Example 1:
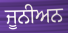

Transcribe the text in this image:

ਜੂਨੀਅਨ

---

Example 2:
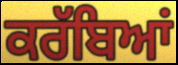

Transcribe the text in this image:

ਕਰੱਬਿਆਂ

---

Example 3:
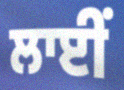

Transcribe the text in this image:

ਲਾਈਂ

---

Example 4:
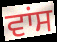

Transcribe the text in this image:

ਵਾਂਸ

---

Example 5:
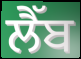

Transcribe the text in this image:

ਲੈੱਬ